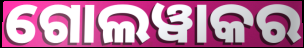
ଗୋଲୱାକର